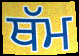
ਥੱਮ